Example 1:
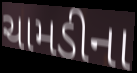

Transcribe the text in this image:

ચામડીના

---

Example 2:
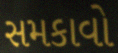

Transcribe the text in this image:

સમકાવો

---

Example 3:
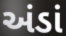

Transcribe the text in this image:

અંડાં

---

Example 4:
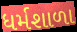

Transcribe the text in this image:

ધર્મશાળા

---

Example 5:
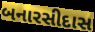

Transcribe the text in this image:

બનારસીદાસ